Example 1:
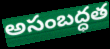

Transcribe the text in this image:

అసంబద్ధత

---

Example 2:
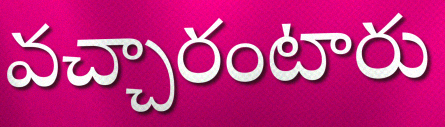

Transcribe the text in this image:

వచ్చారంటారు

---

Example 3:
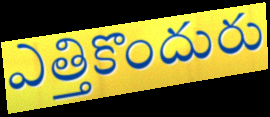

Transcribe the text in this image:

ఎత్తికొందురు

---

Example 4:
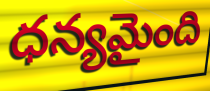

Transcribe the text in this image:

ధన్యమైంది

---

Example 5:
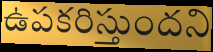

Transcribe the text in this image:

ఉపకరిస్తుందని